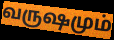
வருஷமும்